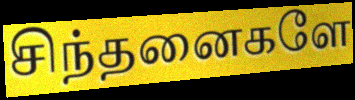
சிந்தனைகளே